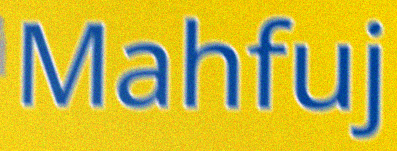
Mahfuj